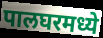
पालघरमध्ये